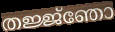
തജ്ജ്ഞോ